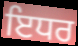
ਇਧਰ